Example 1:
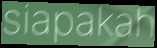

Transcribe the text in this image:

siapakah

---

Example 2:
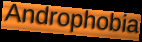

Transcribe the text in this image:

Androphobia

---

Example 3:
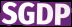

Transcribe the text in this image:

SGDP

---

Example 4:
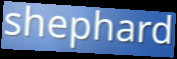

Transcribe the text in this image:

shephard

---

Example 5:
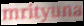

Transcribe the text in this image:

mrityuna